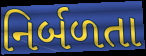
નિર્બળતા